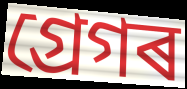
গ্ৰেগৰ